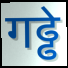
गढ्ढे